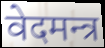
वेदमन्त्र